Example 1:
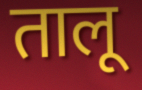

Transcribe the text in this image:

तालू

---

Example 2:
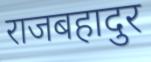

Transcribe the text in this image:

राजबहादुर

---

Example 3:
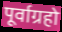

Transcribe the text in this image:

पूर्वाग्रहो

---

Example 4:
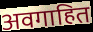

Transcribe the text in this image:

अवगाहित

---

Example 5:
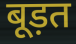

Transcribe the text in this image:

बूड़त